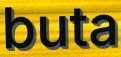
buta